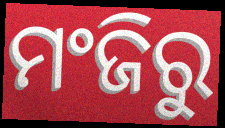
ମଂଜିରୁ